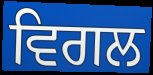
ਵਿਗਲ